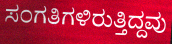
ಸಂಗತಿಗಳಿರುತ್ತಿದ್ದವು